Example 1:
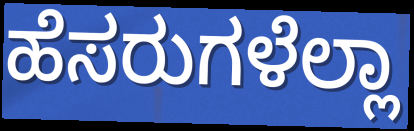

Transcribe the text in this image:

ಹೆಸರುಗಳೆಲ್ಲಾ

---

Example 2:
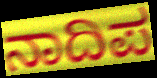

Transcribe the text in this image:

ನಾದಿಪ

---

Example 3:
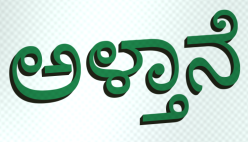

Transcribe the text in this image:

ಅಳ್ತಾನೆ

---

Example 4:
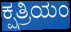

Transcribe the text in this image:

ಕ್ಷತ್ರಿಯಂ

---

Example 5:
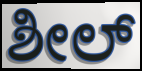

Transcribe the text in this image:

ಶೀಲ್